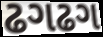
ઢગઢગ